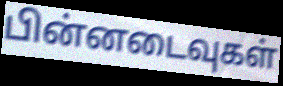
பின்னடைவுகள்